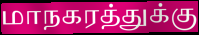
மாநகரத்துக்கு